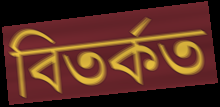
বিতৰ্কত